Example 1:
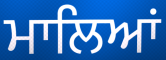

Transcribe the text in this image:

ਮਾਲਿਆਂ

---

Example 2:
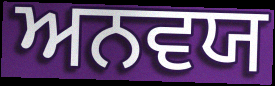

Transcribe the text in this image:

ਅਨਵਯ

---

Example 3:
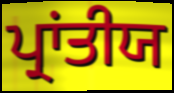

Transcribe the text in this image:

ਪ੍ਰਾਂਤੀਯ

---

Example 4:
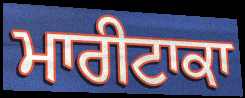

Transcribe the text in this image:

ਮਾਰੀਟਾਕਾ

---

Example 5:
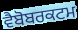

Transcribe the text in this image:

ਵੈਬੋਬਰਕਟਮ